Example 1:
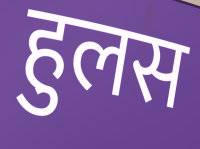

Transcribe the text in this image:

हुलस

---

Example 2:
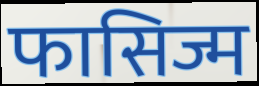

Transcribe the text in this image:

फासिज्म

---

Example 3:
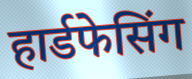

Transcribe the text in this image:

हार्डफेसिंग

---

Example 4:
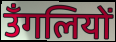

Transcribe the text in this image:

उँगलियों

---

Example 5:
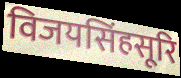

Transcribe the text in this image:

विजयसिंहसूरि